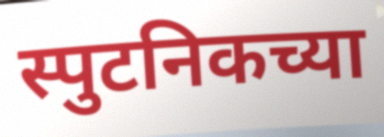
स्पुटनिकच्या